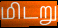
மிடறு